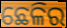
ଛେଳିର